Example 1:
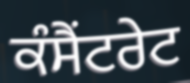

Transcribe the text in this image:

ਕੰਸੈਂਟਰੇਟ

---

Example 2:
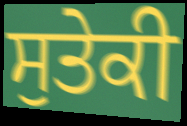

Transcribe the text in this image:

ਸੁਤੇਕੀ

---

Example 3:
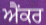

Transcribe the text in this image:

ਐਂਕਰ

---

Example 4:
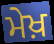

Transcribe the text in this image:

ਮੇਖ਼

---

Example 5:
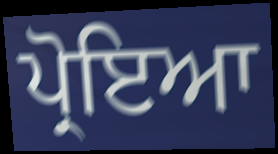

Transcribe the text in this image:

ਪ੍ਰੋਇਆ